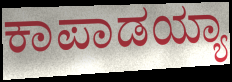
ಕಾಪಾಡಯ್ಯಾ